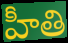
హీతి